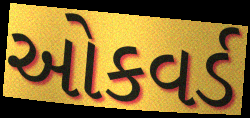
ઓકવર્ડ